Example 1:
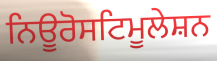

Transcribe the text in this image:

ਨਿਊਰੋਸਟਿਮੂਲੇਸ਼ਨ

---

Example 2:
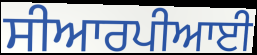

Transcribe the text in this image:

ਸੀਆਰਪੀਆਈ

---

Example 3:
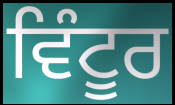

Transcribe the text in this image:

ਵਿੰਟੂਰ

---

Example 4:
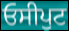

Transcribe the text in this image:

ਓਸੀਪੁਟ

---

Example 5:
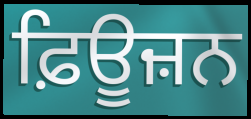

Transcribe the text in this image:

ਫ਼ਿਊਜ਼ਨ